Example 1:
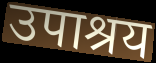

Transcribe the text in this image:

उपाश्रय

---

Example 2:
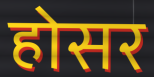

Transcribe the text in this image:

होसर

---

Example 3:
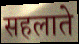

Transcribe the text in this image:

सहलाते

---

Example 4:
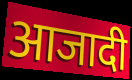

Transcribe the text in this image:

आजादी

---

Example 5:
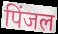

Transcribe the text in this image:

पिंजल